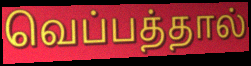
வெப்பத்தால்